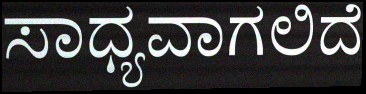
ಸಾಧ್ಯವಾಗಲಿದೆ